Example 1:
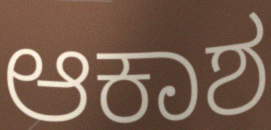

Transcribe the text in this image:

ಆಕಾಶ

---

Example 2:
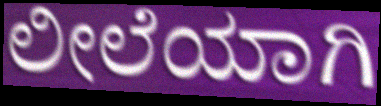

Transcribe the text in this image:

ಲೀಲೆಯಾಗಿ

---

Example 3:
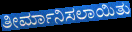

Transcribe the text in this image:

ತೀರ್ಮಾನಿಸಲಾಯಿತು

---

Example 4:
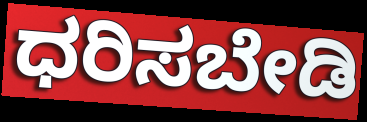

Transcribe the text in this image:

ಧರಿಸಬೇಡಿ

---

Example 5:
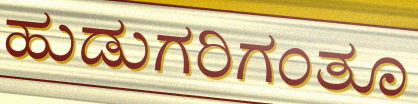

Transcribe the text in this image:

ಹುಡುಗರಿಗಂತೂ